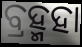
ବ୍ରହ୍ମହା